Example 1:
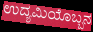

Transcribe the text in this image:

ಉದ್ಯಮಿಯೊಬ್ಬನ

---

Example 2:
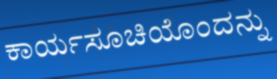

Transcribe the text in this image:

ಕಾರ್ಯಸೂಚಿಯೊಂದನ್ನು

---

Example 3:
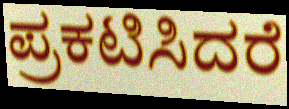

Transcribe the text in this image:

ಪ್ರಕಟಿಸಿದರೆ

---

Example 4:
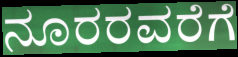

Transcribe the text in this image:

ನೂರರವರೆಗೆ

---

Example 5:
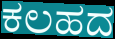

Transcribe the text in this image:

ಕಲಹದ